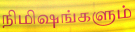
நிமிஷங்களும்